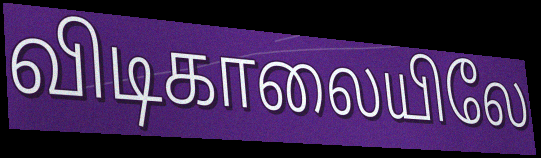
விடிகாலையிலே